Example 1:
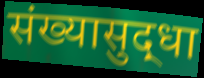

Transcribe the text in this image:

संख्यासुद्धा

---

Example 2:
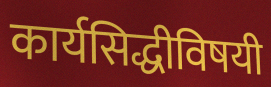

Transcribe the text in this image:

कार्यसिद्धीविषयी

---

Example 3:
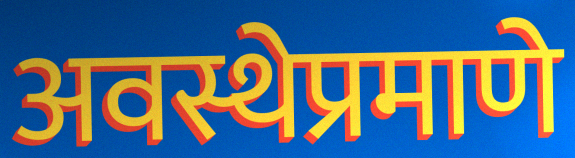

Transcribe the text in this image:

अवस्थेप्रमाणे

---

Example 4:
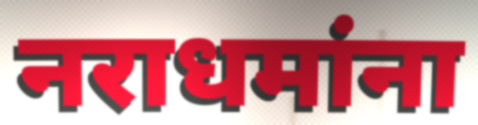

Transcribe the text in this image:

नराधमांना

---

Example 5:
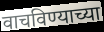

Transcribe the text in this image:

वाचविण्याच्या